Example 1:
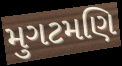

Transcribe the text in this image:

મુગટમણિ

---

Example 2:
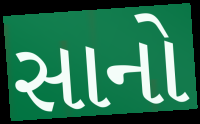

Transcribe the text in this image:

સાનો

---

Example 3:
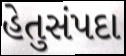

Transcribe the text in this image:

હેતુસંપદા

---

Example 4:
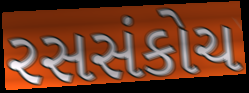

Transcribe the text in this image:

રસસંકોચ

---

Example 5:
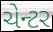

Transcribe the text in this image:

ચેન્ટર